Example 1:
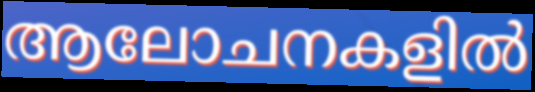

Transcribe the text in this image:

ആലോചനകളിൽ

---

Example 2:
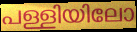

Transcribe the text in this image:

പള്ളിയിലോ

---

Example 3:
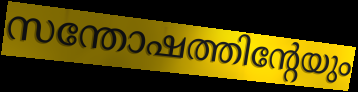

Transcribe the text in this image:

സന്തോഷത്തിന്റേയും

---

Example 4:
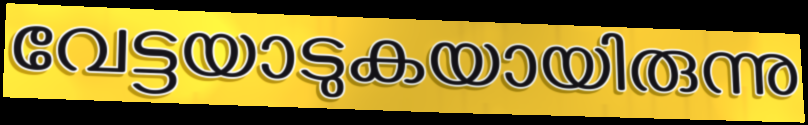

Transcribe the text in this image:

വേട്ടയാടുകയായിരുന്നു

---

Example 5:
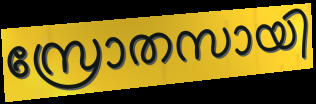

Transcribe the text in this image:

സ്രോതസായി